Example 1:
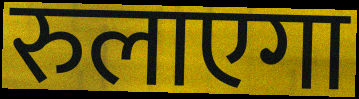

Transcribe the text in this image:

रुलाएगा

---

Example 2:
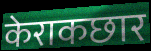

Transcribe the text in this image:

केराकछार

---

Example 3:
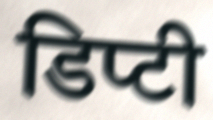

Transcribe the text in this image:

डिप्‍टी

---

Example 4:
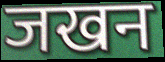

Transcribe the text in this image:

जखन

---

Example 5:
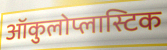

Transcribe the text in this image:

ऑकुलोप्लास्टिक